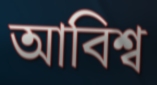
আবিশ্ব